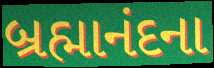
બ્રહ્માનંદના